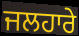
ਜਲਹਾਰੇ